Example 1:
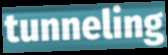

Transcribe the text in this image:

tunneling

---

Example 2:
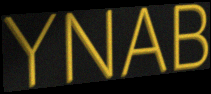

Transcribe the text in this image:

YNAB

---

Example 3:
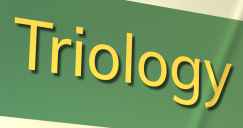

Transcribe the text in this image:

Triology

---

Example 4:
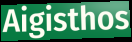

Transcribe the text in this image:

Aigisthos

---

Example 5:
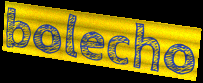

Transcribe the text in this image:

bolecho